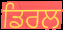
ਡਿਰਲ